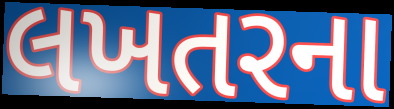
લખતરના